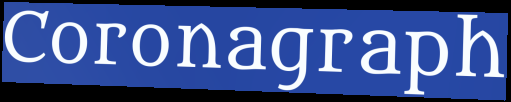
Coronagraph